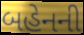
બહેનની